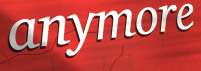
anymore